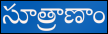
సూత్రాణాం